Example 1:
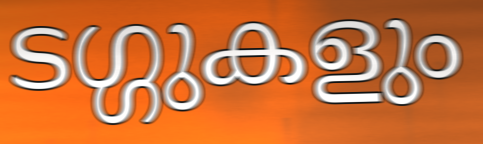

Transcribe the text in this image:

ടഗ്ഗുകളും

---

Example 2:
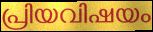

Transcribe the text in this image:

പ്രിയവിഷയം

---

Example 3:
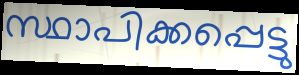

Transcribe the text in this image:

സ്ഥാപിക്കപ്പെട്ടു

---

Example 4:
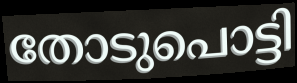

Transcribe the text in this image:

തോടുപൊട്ടി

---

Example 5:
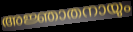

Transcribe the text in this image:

അജ്ഞാതനായും